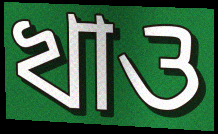
খাও